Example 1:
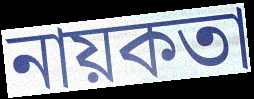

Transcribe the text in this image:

নায়কতা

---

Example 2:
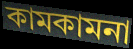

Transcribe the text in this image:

কামকামনা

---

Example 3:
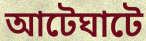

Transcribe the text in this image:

আটেঘাটে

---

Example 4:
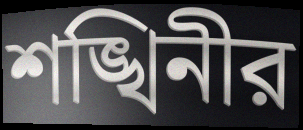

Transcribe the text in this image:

শঙ্খিনীর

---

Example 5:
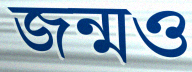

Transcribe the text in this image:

জন্মও